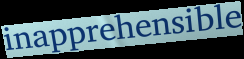
inapprehensible